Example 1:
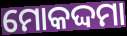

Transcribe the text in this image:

ମୋକଦ୍ଦମା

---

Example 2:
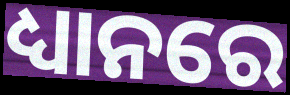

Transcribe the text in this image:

ଧ୍ୟାନରେ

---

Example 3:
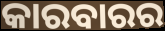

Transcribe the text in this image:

କାରବାରର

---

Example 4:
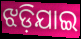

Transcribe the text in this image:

ଝଡ଼ିଯାଇ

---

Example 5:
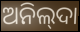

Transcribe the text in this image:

ଅନିଲ୍‌ଦା